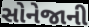
સોનેજાની